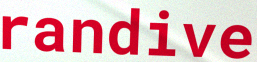
randive